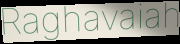
Raghavaiah